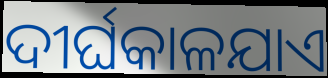
ଦୀର୍ଘକାଳଯାଏ